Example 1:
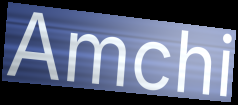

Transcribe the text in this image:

Amchi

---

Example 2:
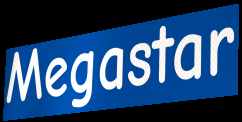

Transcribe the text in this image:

Megastar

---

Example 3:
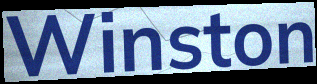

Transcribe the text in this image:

Winston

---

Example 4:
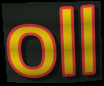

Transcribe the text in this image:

oll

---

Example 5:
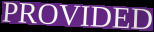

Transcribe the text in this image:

PROVIDED